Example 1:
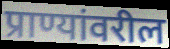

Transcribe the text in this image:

प्राण्यांवरील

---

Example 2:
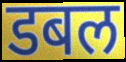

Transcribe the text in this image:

डबल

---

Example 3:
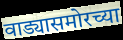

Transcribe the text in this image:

वाड्यासमोरच्या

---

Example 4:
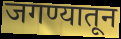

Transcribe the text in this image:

जगण्यातून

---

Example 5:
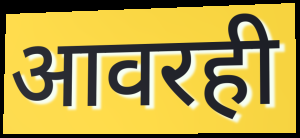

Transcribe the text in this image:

आवरही